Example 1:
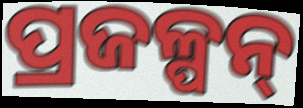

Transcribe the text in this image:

ପ୍ରଜଳ୍ପନ୍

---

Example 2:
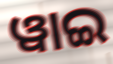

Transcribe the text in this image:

ୱାଇ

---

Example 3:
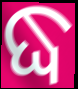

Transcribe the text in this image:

ଦ୍ଧ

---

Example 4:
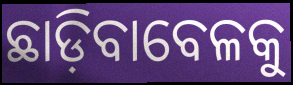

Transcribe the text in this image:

ଛାଡ଼ିବାବେଳକୁ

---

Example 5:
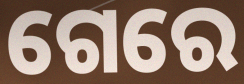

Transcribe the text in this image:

ଗେରେ